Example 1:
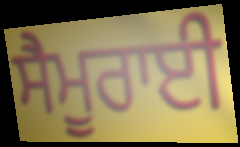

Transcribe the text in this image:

ਸੈਮੂਰਾਈ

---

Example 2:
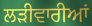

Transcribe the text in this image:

ਲੜੀਵਾਰੀਆਂ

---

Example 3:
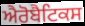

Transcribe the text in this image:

ਐਰੋਬੈਟਿਕਸ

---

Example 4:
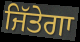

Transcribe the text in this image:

ਜਿੱਤੇਗਾ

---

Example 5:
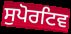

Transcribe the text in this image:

ਸੁਪੋਰਟਿਵ